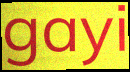
gayi